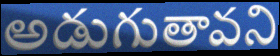
అడుగుతావని